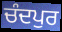
ਚੰਦਪੁਰ